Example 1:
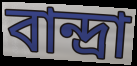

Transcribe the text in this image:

বান্দ্রা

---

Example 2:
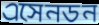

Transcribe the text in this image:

এসেনডন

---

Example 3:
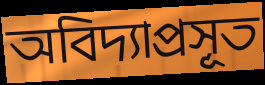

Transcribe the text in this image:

অবিদ্যাপ্রসূত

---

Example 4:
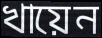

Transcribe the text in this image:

খায়েন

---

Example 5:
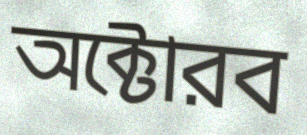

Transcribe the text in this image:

অক্টোরব